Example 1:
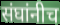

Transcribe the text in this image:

संघांनीच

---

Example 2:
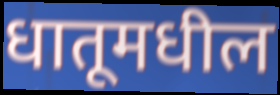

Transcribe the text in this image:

धातूमधील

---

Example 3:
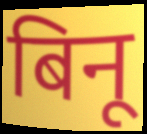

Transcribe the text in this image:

बिनू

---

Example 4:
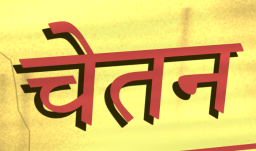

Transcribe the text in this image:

चेतन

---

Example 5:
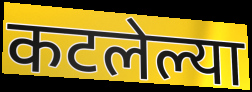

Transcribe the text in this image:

कटलेल्या